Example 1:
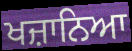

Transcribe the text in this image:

ਖਜ਼ਾਨਿਆ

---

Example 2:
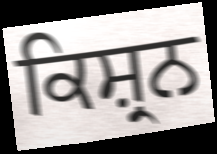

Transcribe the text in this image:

ਕਿਸ਼੍ਰਨ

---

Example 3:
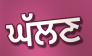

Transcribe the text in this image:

ਘੱਲਣ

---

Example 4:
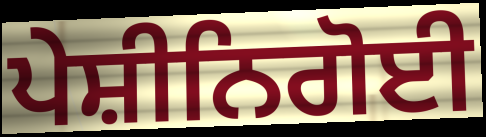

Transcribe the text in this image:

ਪੇਸ਼ੀਨਿਗੋਈ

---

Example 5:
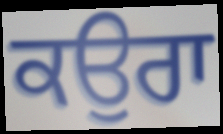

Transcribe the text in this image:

ਕਉਰਾ